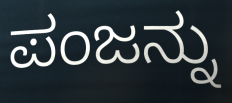
ಪಂಜನ್ನು